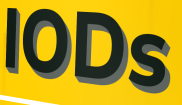
IODs